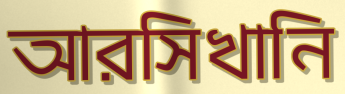
আরসিখানি